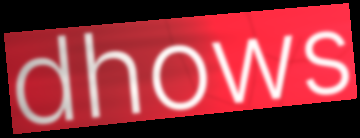
dhows